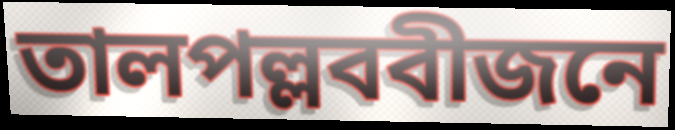
তালপল্লববীজনে